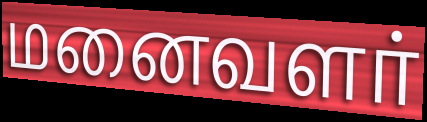
மனைவளர்